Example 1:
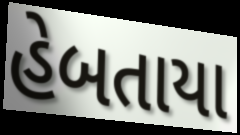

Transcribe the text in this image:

હેબતાયા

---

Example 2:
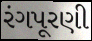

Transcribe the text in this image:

રંગપૂરણી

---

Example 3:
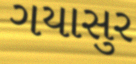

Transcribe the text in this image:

ગયાસુર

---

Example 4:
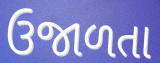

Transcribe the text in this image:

ઉજાળતા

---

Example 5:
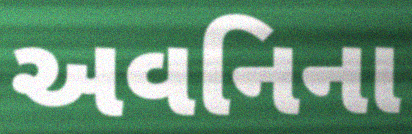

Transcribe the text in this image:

અવનિના